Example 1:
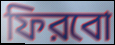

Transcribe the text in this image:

ফিরবো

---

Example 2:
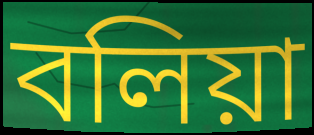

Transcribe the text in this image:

বলিয়া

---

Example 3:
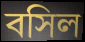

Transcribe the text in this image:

বসিল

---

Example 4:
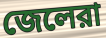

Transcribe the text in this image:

জেলেরা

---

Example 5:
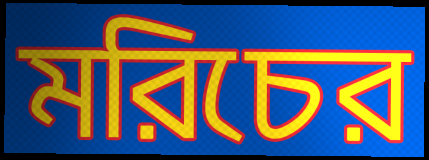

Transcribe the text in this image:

মরিচের